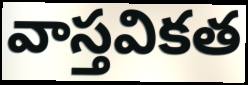
వాస్తవికత